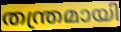
തന്ത്രമായി